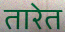
तारेत